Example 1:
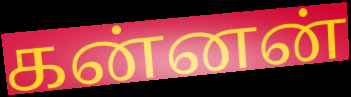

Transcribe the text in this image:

கன்னன்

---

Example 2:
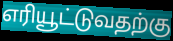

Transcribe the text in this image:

எரியூட்டுவதற்கு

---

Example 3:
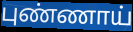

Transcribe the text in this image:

புண்ணாய்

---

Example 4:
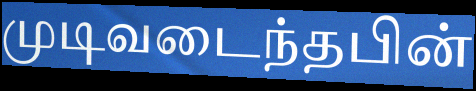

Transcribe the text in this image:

முடிவடைந்தபின்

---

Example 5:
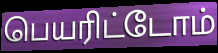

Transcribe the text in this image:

பெயரிட்டோம்